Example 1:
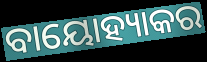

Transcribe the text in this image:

ବାୟୋହ୍ୟାକର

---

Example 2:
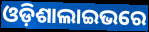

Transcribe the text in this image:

ଓଡ଼ିଶାଲାଇଭରେ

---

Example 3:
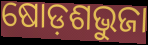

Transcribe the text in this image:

ଷୋଡ଼ଶଭୁଜା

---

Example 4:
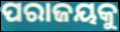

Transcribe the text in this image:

ପରାଜୟକୁ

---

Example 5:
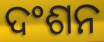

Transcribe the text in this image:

ଦଂଶନ